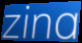
zina